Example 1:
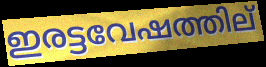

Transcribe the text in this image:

ഇരട്ടവേഷത്തില്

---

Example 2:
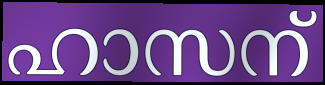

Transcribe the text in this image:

ഹാസന്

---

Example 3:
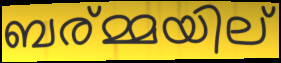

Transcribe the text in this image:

ബര്മ്മയില്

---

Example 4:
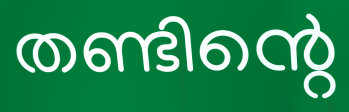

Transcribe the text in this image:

തണ്ടിന്റെ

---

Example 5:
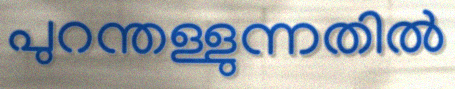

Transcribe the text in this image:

പുറന്തള്ളുന്നതിൽ